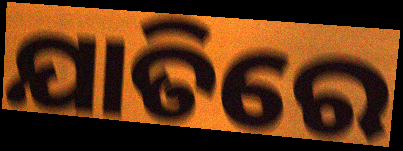
ଯାତିରେ